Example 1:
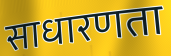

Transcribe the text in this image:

साधारणता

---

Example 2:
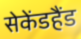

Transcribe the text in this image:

सेकेंडहैंड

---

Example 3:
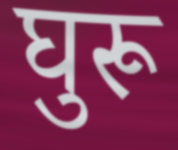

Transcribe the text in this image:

घुरू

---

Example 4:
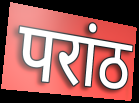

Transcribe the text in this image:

परांठ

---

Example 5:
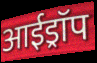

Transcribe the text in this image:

आईड्रॉप